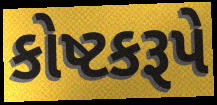
કોષ્ટકરૂપે